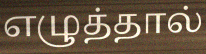
எழுத்தால்